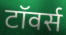
टॉवर्स